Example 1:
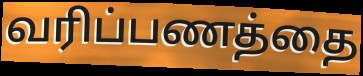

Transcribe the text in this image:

வரிப்பணத்தை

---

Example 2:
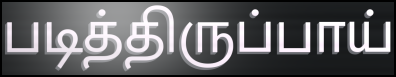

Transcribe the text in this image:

படித்திருப்பாய்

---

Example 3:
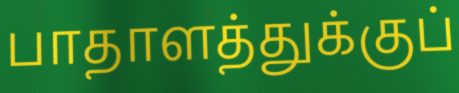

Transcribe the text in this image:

பாதாளத்துக்குப்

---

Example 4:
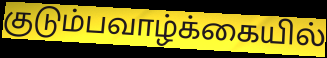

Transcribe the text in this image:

குடும்பவாழ்க்கையில்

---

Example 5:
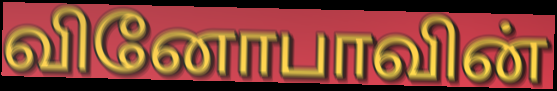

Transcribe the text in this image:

வினோபாவின்